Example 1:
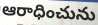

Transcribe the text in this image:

ఆరాధించును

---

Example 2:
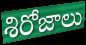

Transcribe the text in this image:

శిరోజాలు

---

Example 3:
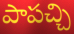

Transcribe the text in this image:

పాపచ్చి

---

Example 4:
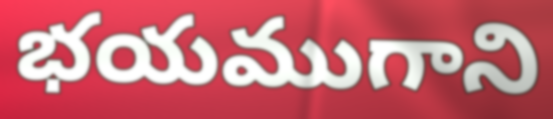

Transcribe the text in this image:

భయముగాని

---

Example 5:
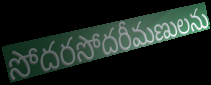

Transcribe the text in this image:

సోదరసోదరీమణులను